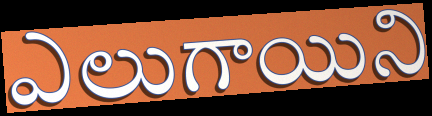
ఎలుగాయిని